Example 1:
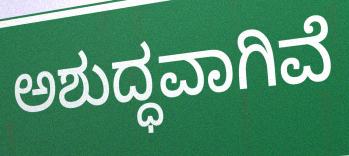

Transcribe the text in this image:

ಅಶುದ್ಧವಾಗಿವೆ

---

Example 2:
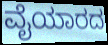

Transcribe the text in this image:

ವೈಯಾರದ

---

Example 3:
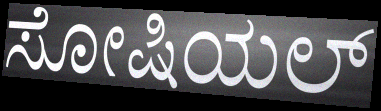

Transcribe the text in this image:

ಸೋಷಿಯಲ್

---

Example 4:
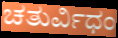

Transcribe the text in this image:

ಚತುರ್ವಿಧಂ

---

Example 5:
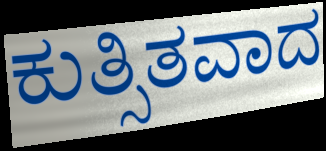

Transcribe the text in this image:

ಕುತ್ಸಿತವಾದ